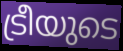
ട്രീയുടെ